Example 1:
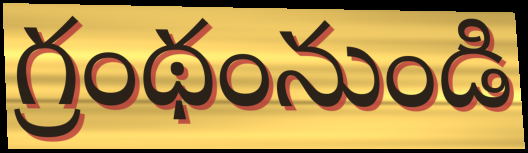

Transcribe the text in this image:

గ్రంథంనుండి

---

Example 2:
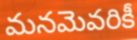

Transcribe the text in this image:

మనమెవరికీ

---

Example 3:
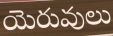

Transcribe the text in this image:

యెరువులు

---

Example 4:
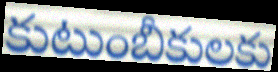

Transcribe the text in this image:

కుటుంబీకులకు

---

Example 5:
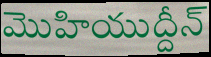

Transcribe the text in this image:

మొహియుద్దీన్